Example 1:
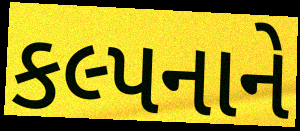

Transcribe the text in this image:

કલ્પનાને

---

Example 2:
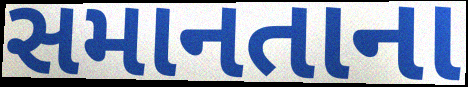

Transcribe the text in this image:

સમાનતાના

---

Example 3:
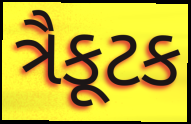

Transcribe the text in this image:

ત્રૈકૂટક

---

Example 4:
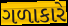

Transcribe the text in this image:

ગળાકારે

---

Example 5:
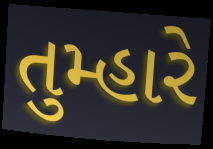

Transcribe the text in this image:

તુમ્હારે